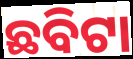
ଛବିଟା